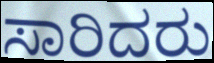
ಸಾರಿದರು